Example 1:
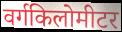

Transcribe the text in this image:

वर्गकिलोमीटर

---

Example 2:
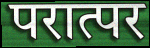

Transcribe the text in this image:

परात्‍पर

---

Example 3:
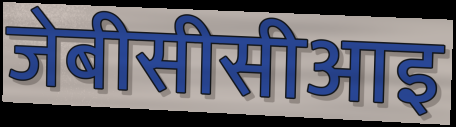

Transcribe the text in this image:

जेबीसीसीआइ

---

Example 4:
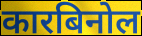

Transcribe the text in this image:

कारबिनोल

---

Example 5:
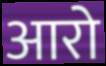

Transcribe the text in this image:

आरो